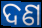
ଦଣ